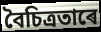
বৈচিত্ৰতাৰে